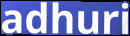
adhuri